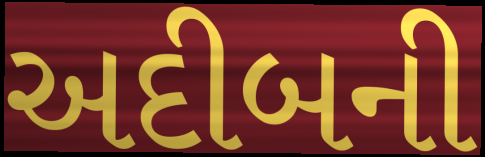
અદીબની